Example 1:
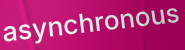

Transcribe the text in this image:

asynchronous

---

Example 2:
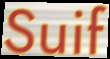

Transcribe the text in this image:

Suif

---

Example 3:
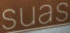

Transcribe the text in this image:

suas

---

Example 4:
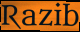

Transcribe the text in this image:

Razib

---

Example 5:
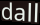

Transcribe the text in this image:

dall